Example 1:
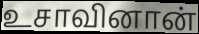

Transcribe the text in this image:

உசாவினான்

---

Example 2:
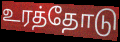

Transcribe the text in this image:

உரத்தோடு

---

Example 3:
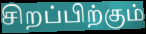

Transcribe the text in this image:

சிறப்பிற்கும்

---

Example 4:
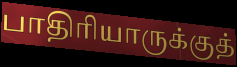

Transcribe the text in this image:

பாதிரியாருக்குத்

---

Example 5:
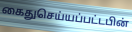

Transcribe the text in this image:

கைதுசெய்யப்பட்டபின்